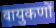
वायुकणों